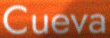
Cueva